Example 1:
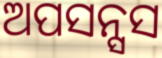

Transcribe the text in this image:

ଅପସନ୍ସସ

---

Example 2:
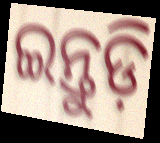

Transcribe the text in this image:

ଇନ୍ତୁଡ଼ି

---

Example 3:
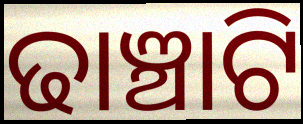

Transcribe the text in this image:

ଢାଞ୍ଚାଟି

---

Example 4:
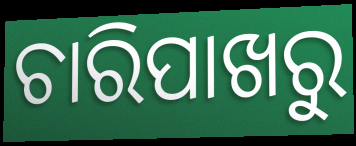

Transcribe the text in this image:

ଚାରିପାଖରୁ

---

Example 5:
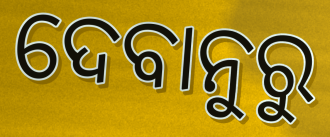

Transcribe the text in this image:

ଦେବାନୁରୁ